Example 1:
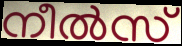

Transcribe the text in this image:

നീൽസ്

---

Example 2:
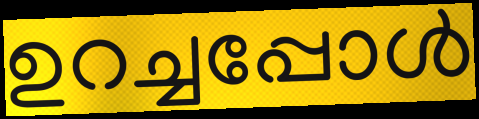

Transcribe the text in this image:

ഉറച്ചപ്പോൾ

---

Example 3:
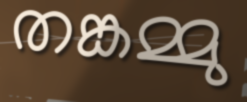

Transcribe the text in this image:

തങ്കമ്മു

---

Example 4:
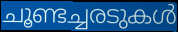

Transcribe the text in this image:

ചൂണ്ടച്ചരടുകൾ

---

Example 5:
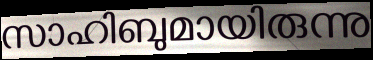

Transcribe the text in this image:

സാഹിബുമായിരുന്നു